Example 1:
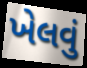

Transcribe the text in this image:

ખેલવું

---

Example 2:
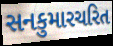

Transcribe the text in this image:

સનકુમારચરિત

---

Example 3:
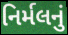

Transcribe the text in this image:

નિર્મલનું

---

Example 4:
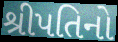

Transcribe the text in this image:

શ્રીપતિનો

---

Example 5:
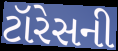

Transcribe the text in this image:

ટૉરેસની